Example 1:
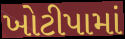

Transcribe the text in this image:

ખોટીપામાં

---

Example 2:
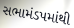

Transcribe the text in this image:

સભામંડપમાંથી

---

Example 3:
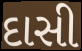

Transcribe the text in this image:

દાસી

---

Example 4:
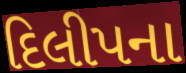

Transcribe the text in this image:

દિલીપના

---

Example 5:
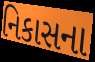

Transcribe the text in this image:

નિકાસના